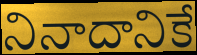
నినాదానికే